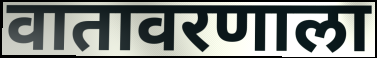
वातावरणाला